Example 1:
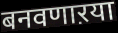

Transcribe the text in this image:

बनवणाऱया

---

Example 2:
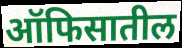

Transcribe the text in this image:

ऑफिसातील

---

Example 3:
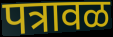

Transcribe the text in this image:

पत्रावळ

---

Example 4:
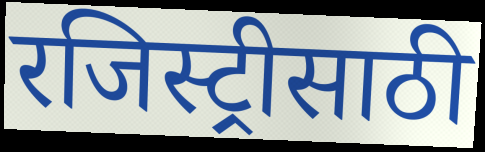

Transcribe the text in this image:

रजिस्ट्रीसाठी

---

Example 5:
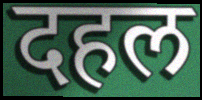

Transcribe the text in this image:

दहल